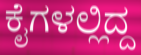
ಕೈಗಳಲ್ಲಿದ್ದ